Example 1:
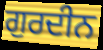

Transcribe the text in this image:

ਗੁਰਦੀਨ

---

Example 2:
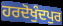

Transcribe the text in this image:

ਹਰਦੋਖੁੰਦਪੁਰ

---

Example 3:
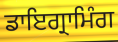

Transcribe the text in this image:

ਡਾਇਗ੍ਰਾਮਿੰਗ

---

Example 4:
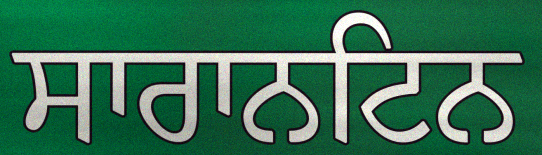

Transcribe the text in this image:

ਸਾਰਾਨਟਿਨ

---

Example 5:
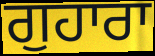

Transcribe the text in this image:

ਗੁਹਾਰਾ